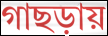
গাছড়ায়